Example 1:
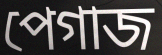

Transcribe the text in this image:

পেগাজ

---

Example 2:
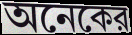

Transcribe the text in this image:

অনেকের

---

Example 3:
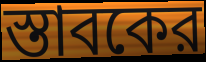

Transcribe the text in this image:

স্তাবকের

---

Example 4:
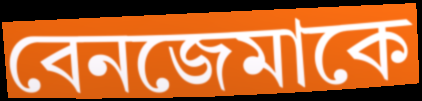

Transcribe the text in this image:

বেনজেমাকে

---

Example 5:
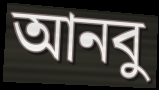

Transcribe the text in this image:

আনবু